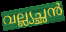
വല്ല്യച്ഛൻ